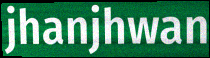
jhanjhwan